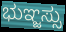
ಭುಞ್ಜಸ್ಸು